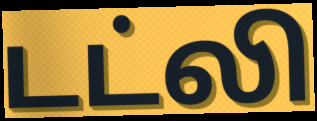
டட்லி